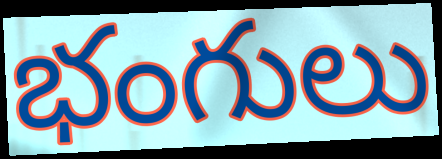
భంగులు